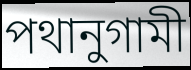
পথানুগামী